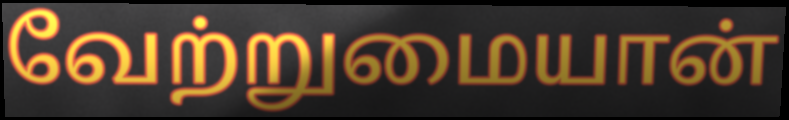
வேற்றுமையான்